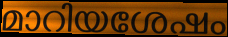
മാറിയശേഷം